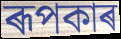
ৰূপকাৰ